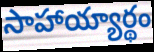
సాహాయ్యార్థం